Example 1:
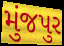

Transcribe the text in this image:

મુંજપુર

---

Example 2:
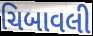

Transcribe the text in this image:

ચિબાવલી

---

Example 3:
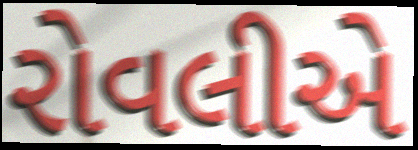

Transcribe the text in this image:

રોવલીએ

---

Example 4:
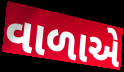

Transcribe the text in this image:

વાળાએ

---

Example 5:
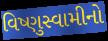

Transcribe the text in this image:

વિષ્ણુસ્વામીનો